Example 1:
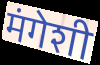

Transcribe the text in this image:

मंगेशी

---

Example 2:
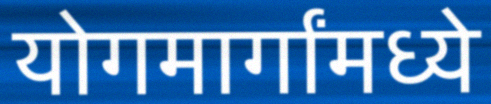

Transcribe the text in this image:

योगमार्गांमध्ये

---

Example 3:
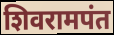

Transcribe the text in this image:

शिवरामपंत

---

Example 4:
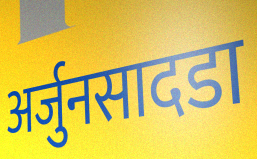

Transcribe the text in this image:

अर्जुनसादडा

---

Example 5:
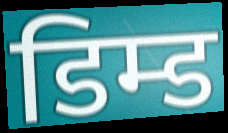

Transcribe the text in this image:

डिम्ड